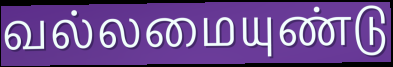
வல்லமையுண்டு